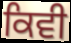
ਕਿਵੀ